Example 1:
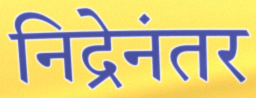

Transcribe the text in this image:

निद्रेनंतर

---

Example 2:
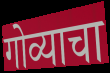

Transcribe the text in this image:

गोव्याचा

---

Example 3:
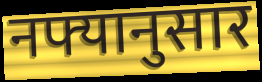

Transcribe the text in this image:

नफ्यानुसार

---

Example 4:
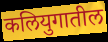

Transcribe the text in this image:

कलियुगातील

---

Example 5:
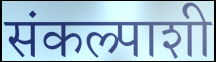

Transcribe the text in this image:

संकल्पाशी